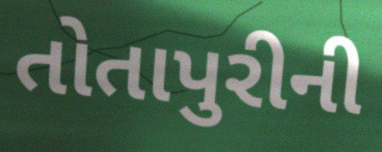
તોતાપુરીની